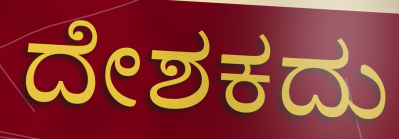
ದೇಶಕದು